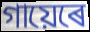
গায়েৰে